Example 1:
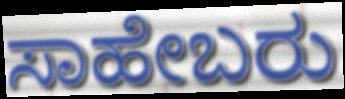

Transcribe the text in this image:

ಸಾಹೇಬರು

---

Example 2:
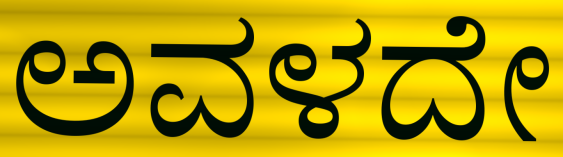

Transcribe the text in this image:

ಅವಳದೇ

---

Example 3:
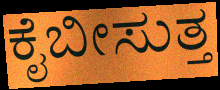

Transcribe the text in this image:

ಕೈಬೀಸುತ್ತ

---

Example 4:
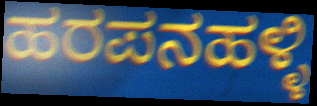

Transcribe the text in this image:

ಹರಪನಹಳ್ಳಿ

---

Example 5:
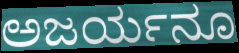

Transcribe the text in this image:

ಅಜರ್ಯನೂ